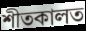
শীতকালত